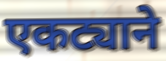
एकट्याने